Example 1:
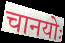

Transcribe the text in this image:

चानयोः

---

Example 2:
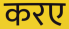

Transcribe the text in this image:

करए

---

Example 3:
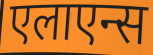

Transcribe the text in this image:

एलाएन्स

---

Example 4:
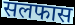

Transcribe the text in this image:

सलफास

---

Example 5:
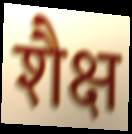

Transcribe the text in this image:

शैक्ष